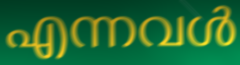
എന്നവൾ